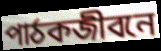
পাঠকজীবনে